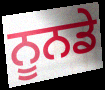
ਨੂਨਡੇ